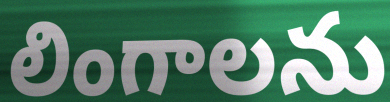
లింగాలను